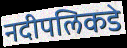
नदीपलिकडे